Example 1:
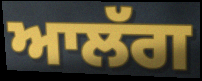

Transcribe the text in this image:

ਆਲੱਗ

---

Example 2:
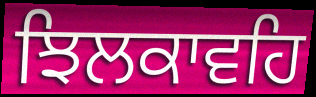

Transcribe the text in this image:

ਝਿਲਕਾਵਹਿ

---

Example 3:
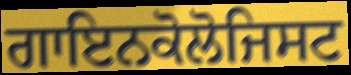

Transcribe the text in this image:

ਗਾਇਨਕੋਲੋਜਿਸਟ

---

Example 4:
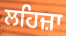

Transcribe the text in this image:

ਲਹਿਜ਼ਾ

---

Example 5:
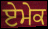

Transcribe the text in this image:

ਏਮੇਕ